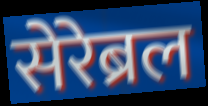
सेरेब्रल